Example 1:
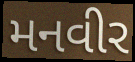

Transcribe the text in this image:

મનવીર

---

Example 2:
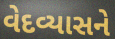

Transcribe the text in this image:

વેદવ્યાસને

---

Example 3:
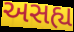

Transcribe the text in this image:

અસહ્ય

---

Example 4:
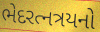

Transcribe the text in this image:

ભેદરત્નત્રયનો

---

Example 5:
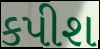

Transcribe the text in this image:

કપીશ